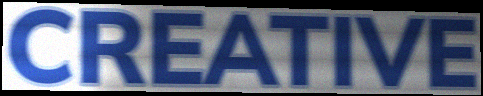
CREATIVE